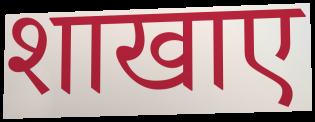
शाखाए